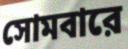
সোমবারে